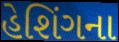
હેશિંગના